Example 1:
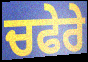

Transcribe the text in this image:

ਚਫੇਰੇ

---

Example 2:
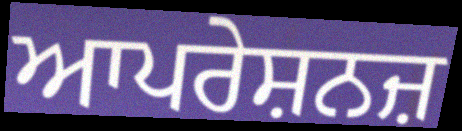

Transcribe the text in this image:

ਆਪਰੇਸ਼ਨਜ਼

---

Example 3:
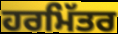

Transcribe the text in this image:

ਹਰਮਿੱਤਰ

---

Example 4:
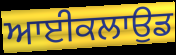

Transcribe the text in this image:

ਆਈਕਲਾਉਡ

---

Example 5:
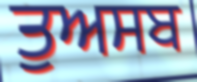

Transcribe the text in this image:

ਤੁਅਸਬ